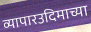
व्यापारउदिमाच्या